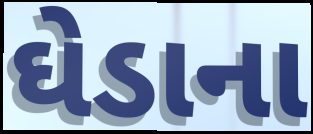
ઘેડાના